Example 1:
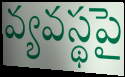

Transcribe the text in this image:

వ్యవస్థపై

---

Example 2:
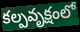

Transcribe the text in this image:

కల్పవృక్షంలో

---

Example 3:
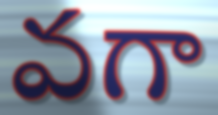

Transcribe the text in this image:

వగా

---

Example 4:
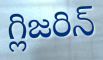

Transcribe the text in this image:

గ్లిజరిన్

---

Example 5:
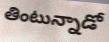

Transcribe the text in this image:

తింటున్నాడో